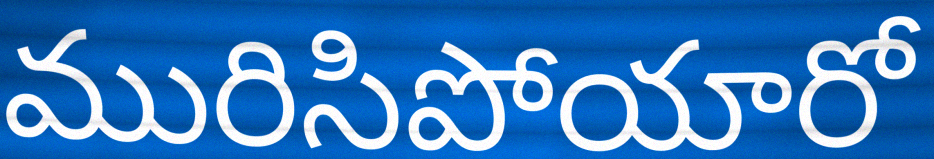
మురిసిపోయారో